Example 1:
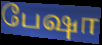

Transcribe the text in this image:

பேஷா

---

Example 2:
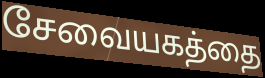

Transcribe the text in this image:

சேவையகத்தை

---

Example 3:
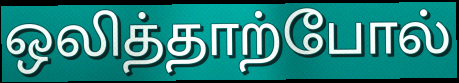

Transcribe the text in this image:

ஒலித்தாற்போல்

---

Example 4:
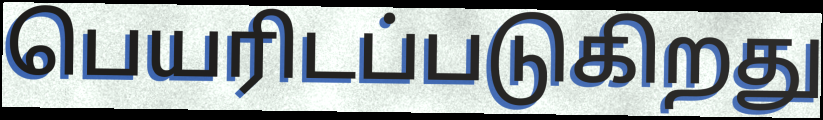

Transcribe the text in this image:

பெயரிடப்படுகிறது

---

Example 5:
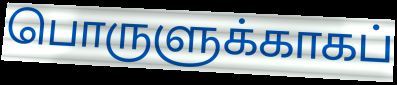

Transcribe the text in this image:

பொருளுக்காகப்